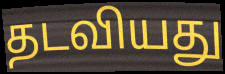
தடவியது